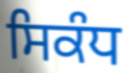
ਸਿਕੰਧ